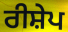
ਰੀਸ਼ੇਪ